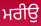
ਮਰੀਉ